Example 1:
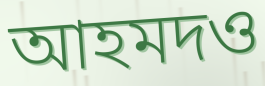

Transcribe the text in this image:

আহমদও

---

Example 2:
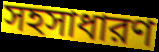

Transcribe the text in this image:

সহসাধারণ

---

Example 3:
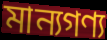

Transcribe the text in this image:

মান্যগণ্য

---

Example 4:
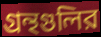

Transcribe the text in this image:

গ্রন্থগুলির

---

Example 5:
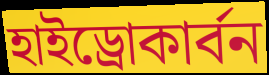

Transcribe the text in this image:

হাইড্রোকার্বন